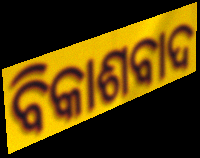
ବିକାଶବାଦ